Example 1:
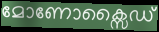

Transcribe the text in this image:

മോണോക്സൈഡ്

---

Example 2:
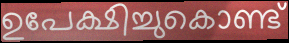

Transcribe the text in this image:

ഉപേക്ഷിച്ചുകൊണ്ട്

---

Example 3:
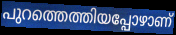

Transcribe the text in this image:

പുറത്തെത്തിയപ്പോഴാണ്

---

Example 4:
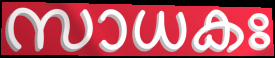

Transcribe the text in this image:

സാധകഃ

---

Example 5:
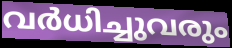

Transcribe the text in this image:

വർധിച്ചുവരും